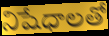
నిషేధాలతో